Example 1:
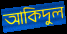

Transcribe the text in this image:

আকিদুল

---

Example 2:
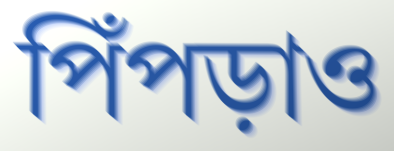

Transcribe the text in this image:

পিঁপড়াও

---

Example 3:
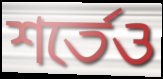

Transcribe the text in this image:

শর্তেও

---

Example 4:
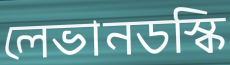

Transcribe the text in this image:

লেভানডস্কি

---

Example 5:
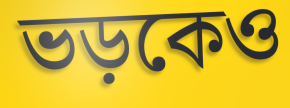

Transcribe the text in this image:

ভড়কেও